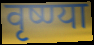
वृष्ण्या